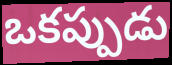
ఒకప్పుడు